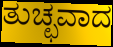
ತುಚ್ಛವಾದ